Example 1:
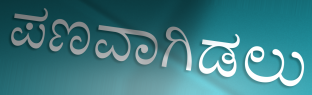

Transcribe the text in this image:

ಪಣವಾಗಿಡಲು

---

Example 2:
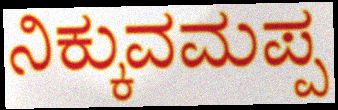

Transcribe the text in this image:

ನಿಕ್ಕುವಮಪ್ಪ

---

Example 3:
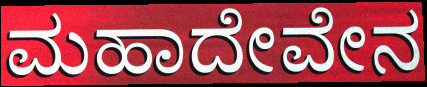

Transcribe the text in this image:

ಮಹಾದೇವೇನ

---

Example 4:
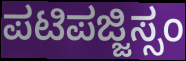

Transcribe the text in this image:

ಪಟಿಪಜ್ಜಿಸ್ಸಂ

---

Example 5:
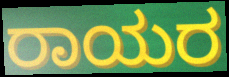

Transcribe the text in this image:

ರಾಯರ